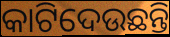
କାଟିଦେଉଛନ୍ତି